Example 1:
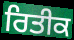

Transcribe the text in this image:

ਰਿਤੀਕ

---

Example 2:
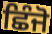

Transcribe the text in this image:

ਛਿੰਜੋ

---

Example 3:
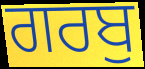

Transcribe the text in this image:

ਗਰਬੁ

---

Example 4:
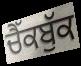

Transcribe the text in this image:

ਚੈੱਕਬੁੱਕ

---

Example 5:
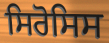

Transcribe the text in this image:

ਸਿਰੋਸਿਸ